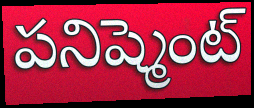
పనిష్మెంట్